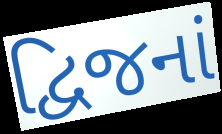
દ્વિજનાં